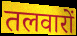
तलवारों